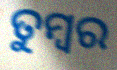
ତୁମ୍ବର